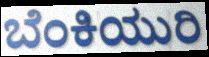
ಬೆಂಕಿಯುರಿ